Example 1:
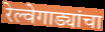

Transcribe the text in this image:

रेल्वेगाड्यांचा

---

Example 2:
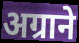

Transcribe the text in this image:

अग्राने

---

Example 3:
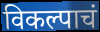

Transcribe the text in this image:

विकल्पाचं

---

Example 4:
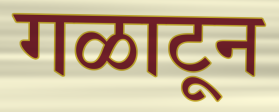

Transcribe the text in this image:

गळाटून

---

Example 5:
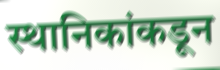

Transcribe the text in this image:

स्थानिकांकडून